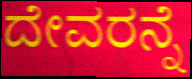
ದೇವರನ್ನೆ